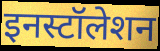
इनस्टॉलेशन